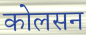
कोलसन